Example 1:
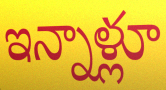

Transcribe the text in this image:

ఇన్నాళ్లూ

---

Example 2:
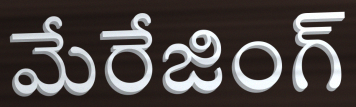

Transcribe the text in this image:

మేరేజింగ్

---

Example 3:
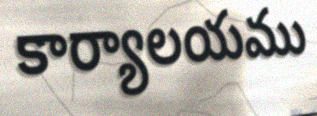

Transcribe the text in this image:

కార్యాలయము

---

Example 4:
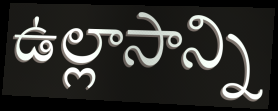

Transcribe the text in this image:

ఉల్లాసాన్ని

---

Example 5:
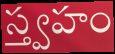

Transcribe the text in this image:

స్త్వహం